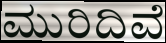
ಮುರಿದಿವೆ